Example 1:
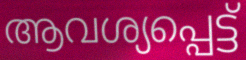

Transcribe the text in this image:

ആവശ്യപ്പെട്ട്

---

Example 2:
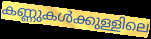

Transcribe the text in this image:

കണ്ണുകൾക്കുള്ളിലെ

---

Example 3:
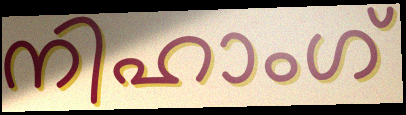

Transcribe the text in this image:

നിഹാംഗ്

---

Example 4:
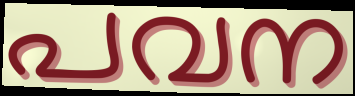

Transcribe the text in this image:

പവന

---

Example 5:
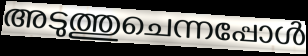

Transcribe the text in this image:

അടുത്തുചെന്നപ്പോൾ